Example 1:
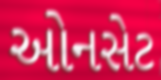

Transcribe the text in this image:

ઓનસેટ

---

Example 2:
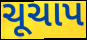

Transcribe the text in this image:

ચૂચાપ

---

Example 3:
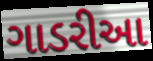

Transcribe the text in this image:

ગાડરીઆ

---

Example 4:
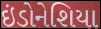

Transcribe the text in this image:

ઇંડોનેશિયા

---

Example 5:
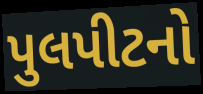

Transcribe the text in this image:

પુલપીટનો